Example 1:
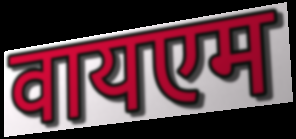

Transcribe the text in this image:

वायएम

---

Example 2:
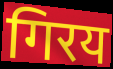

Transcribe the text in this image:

गिरय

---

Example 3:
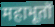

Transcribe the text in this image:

महाभूतों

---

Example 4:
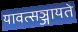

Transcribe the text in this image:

यावत्सञ्जायते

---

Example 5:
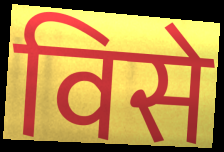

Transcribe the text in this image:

विसे